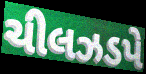
ચીલઝડપે